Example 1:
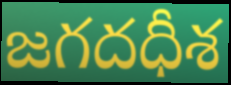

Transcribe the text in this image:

జగదధీశ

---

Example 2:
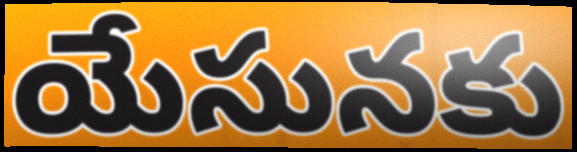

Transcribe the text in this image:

యేసునకు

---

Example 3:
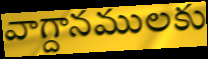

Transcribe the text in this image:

వాగ్దానములకు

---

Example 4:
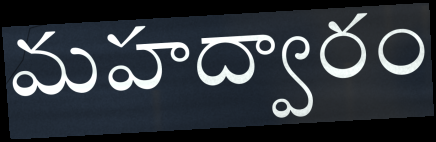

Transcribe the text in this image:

మహద్వారం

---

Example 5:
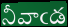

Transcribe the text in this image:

నీవాఁడ